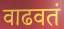
वाढवतं